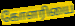
கோளரியை